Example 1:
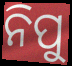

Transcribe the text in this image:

ନିପୁ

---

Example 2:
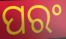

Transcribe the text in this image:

ପରଂ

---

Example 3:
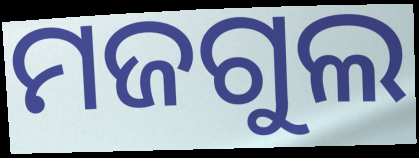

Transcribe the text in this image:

ମଜଗୁଲ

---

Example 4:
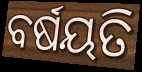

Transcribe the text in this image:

ବର୍ଷୟତି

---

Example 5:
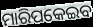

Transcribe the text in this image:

ମାରିପକେଇବ